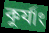
কুর্যাং